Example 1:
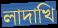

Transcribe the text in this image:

লাদাখি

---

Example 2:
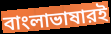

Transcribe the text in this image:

বাংলাভাষারই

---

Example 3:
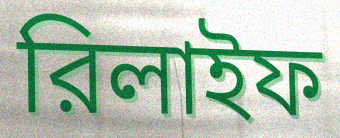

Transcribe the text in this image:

রিলাইফ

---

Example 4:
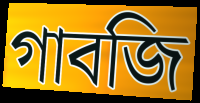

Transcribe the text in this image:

গাবজি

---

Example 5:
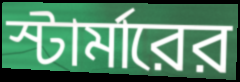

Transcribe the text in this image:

স্টার্মারের